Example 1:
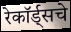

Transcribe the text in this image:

रेकॉर्ड्सचे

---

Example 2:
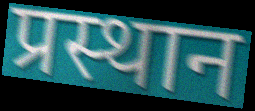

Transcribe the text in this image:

प्रस्थान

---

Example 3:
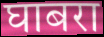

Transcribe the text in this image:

घाबरा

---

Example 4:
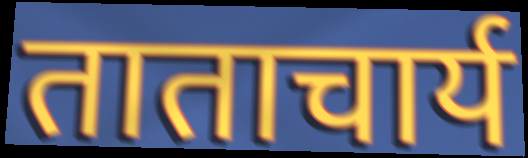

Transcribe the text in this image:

ताताचार्य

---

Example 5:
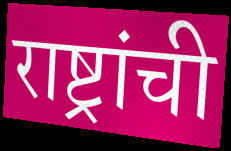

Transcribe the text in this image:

राष्ट्रांची